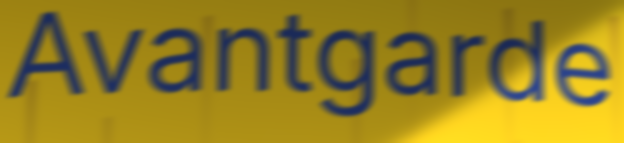
Avantgarde